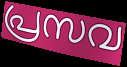
പ്രസവ